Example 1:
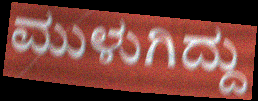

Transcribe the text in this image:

ಮುಳುಗಿದ್ದು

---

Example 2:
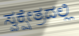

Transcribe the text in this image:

ಸ್ವಕ್ಷೇತ್ರದಲ್ಲಿ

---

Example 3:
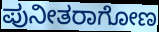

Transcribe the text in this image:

ಪುನೀತರಾಗೋಣ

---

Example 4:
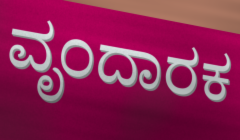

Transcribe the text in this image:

ವೃಂದಾರಕ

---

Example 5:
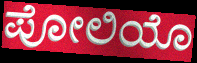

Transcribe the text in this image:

ಪೋಲಿಯೊ